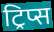
ट्रिप्स